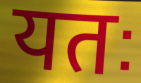
यतः